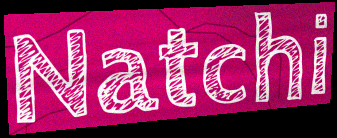
Natchi